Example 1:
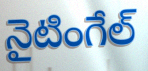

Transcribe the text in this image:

నైటింగేల్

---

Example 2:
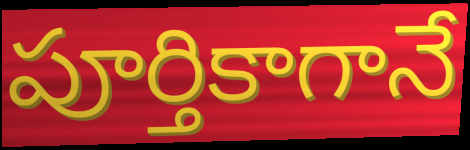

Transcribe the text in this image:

పూర్తికాగానే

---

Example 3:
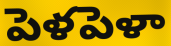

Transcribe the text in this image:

పెళపెళా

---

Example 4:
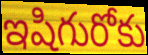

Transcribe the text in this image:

ఇషిగురోకు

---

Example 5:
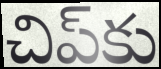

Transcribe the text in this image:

చిప్‌కు